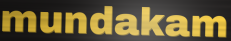
mundakam